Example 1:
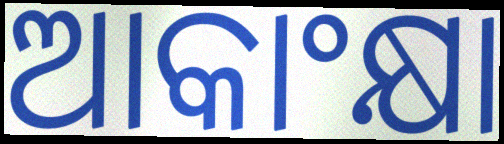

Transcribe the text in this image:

ଆକାଂକ୍ଷା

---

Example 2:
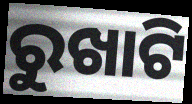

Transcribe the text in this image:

ରୁଖାଟି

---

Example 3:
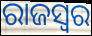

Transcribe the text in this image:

ରାଜସ୍ବର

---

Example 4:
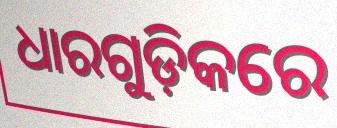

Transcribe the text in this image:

ଧାରଗୁଡ଼ିକରେ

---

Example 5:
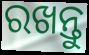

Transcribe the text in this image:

ରଖନ୍ତୁ